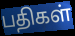
பதிகள்